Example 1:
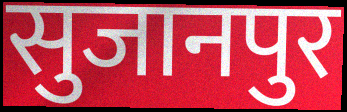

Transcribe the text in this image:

सुजानपुर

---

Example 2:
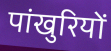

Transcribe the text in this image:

पांखुरियों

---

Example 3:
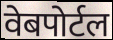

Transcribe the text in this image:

वेबपोर्टल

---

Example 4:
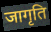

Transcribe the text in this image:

जागृति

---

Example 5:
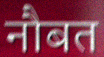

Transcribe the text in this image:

नौबत